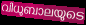
വിധുബാലയുടെ